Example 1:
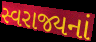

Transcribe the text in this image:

સ્વરાજ્યનાં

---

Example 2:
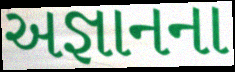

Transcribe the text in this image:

અજ્ઞાનના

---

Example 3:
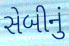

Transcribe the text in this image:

સેબીનું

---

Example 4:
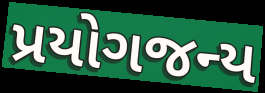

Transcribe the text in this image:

પ્રયોગજન્ય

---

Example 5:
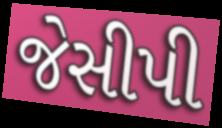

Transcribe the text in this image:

જેસીપી